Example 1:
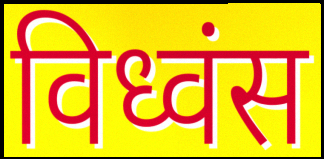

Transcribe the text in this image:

विध्वंस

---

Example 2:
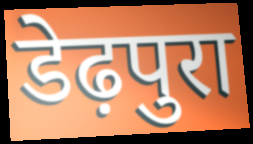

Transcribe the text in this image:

डेढ़पुरा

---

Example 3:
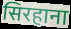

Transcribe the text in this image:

सिरहाना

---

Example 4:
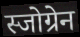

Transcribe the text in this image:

स्जोग्रेन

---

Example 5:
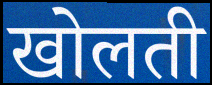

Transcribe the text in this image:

खोलती